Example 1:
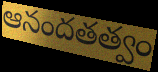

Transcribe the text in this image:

ఆనందతత్వం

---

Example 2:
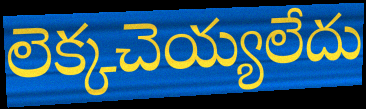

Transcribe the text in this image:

లెక్కచెయ్యలేదు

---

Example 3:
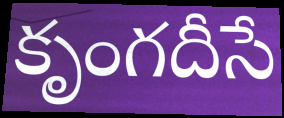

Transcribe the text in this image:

కృంగదీసే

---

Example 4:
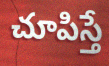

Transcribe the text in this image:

చూపిస్తే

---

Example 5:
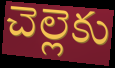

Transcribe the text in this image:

చెల్లెకు